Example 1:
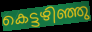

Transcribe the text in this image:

കെട്ടഴിഞ്ഞു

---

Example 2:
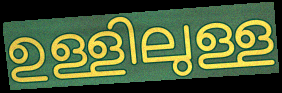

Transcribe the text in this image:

ഉള്ളിലുള്ള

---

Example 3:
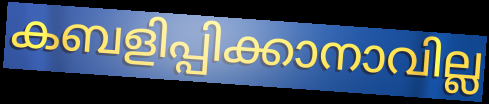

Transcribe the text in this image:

കബളിപ്പിക്കാനാവില്ല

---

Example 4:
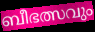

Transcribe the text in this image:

ബീഭത്സവും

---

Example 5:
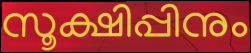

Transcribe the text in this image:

സൂക്ഷിപ്പിനും